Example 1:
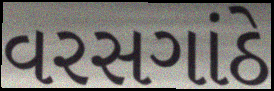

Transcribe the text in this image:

વરસગાંઠે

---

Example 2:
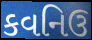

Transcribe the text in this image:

કવનિઉ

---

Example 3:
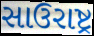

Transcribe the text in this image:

સાઉરાષ્ટ્ર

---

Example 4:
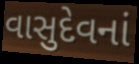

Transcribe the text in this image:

વાસુદેવનાં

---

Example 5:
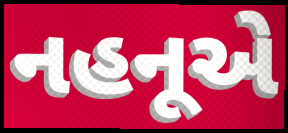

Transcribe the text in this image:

નહનૂએ